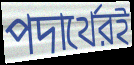
পদার্থেরই